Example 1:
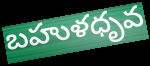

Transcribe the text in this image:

బహుళధృవ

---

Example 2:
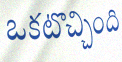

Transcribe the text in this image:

ఒకటొచ్చింది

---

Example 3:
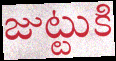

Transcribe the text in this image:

జుట్టుకి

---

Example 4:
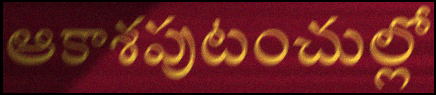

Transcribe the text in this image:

ఆకాశపుటంచుల్లో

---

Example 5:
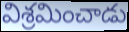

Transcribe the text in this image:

విశ్రమించాడు